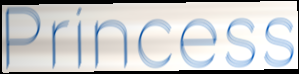
Princess